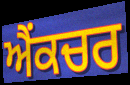
ਐਂਕਚਰ